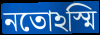
নতোঽস্মি